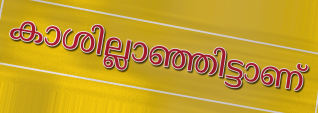
കാശില്ലാഞ്ഞിട്ടാണ്